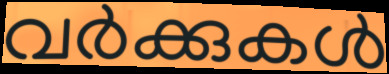
വർക്കുകൾ